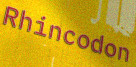
Rhincodon